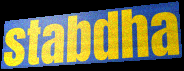
stabdha